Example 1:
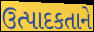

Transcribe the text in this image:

ઉત્પાદકતાને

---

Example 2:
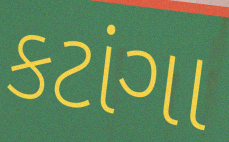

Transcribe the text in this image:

કટાંગા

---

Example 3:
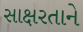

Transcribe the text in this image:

સાક્ષરતાને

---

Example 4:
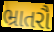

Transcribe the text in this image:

ભ્રાતરૌ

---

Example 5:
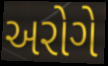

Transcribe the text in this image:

અરોગે